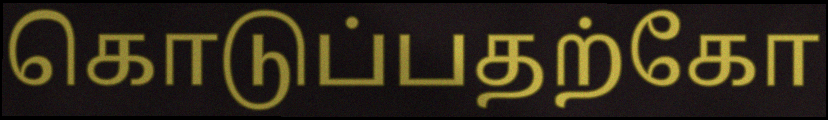
கொடுப்பதற்கோ